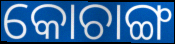
କୋଚାଙ୍ଗ